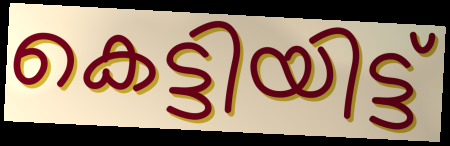
കെട്ടിയിട്ട്